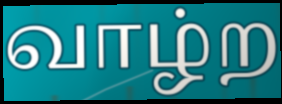
வாழ்ற